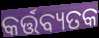
କର୍ତ୍ତବ୍ୟତକ